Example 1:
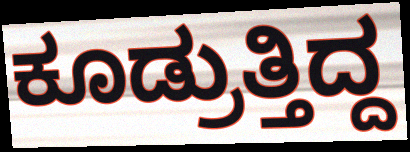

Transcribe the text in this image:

ಕೂಡ್ರುತ್ತಿದ್ದ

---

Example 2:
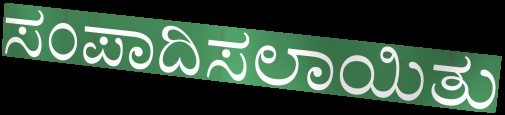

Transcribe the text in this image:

ಸಂಪಾದಿಸಲಾಯಿತು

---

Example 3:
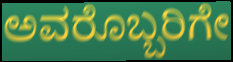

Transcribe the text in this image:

ಅವರೊಬ್ಬರಿಗೇ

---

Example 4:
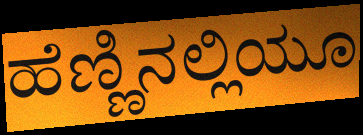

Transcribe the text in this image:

ಹೆಣ್ಣಿನಲ್ಲಿಯೂ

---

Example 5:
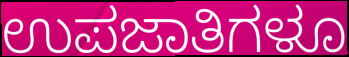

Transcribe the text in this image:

ಉಪಜಾತಿಗಳೂ